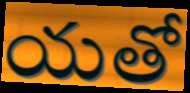
యతో